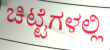
ಚಿಟ್ಟೆಗಳಲ್ಲಿ